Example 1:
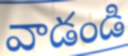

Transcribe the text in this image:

వాడండి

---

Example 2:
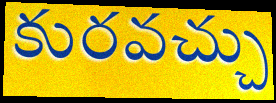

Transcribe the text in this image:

కురవచ్చు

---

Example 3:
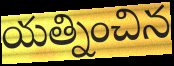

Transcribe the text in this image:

యత్నించిన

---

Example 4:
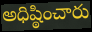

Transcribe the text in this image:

అధిష్ఠించారు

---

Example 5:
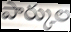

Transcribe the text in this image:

పార్కుల